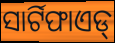
ସାର୍ଟିଫାଏଡ୍